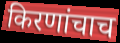
किरणांचाच